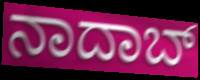
ನಾದಾಬ್